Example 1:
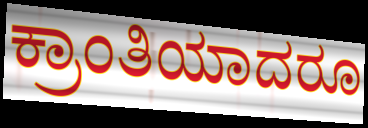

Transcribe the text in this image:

ಕ್ರಾಂತಿಯಾದರೂ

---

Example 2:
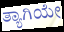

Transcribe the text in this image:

ತ್ಯಾಗಿಯೇ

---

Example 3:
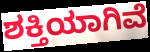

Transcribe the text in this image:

ಶಕ್ತಿಯಾಗಿವೆ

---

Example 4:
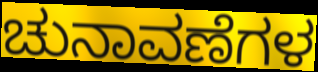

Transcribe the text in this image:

ಚುನಾವಣೆಗಳ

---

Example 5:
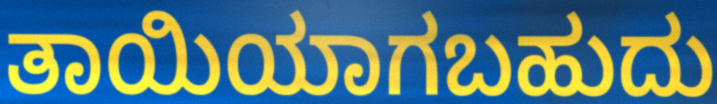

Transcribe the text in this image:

ತಾಯಿಯಾಗಬಹುದು